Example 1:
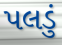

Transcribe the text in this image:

પલડું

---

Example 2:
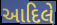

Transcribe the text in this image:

આદિલે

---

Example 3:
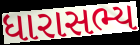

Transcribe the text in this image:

ધારાસભ્ય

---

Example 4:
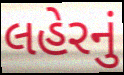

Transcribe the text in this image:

લહેરનું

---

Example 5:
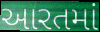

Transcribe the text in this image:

આરતમાં